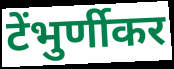
टेंभुर्णीकर